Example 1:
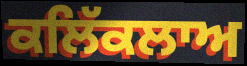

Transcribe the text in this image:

ਕਲਿੱਕਲਾਅ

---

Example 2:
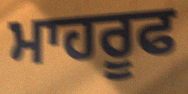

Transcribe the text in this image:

ਮਾਹਰੂਫ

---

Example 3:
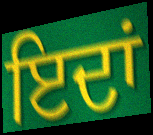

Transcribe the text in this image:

ਇਦਾਂ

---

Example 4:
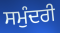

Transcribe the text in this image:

ਸਮੁੰਦਰੀ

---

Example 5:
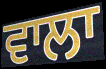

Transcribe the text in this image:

ਵਾਲਾ